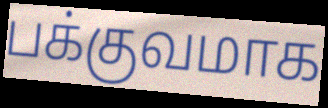
பக்குவமாக